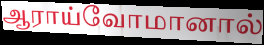
ஆராய்வோமானால்